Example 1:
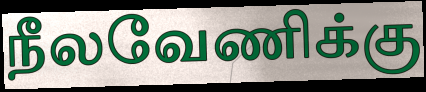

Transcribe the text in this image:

நீலவேணிக்கு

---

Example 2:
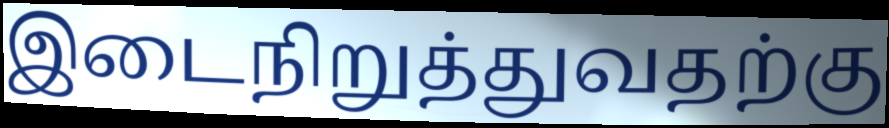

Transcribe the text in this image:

இடைநிறுத்துவதற்கு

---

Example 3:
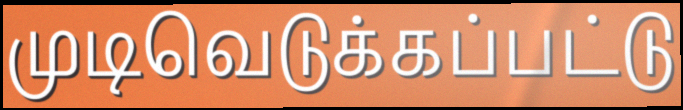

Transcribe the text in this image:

முடிவெடுக்கப்பட்டு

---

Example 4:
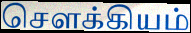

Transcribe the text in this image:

சௌக்கியம்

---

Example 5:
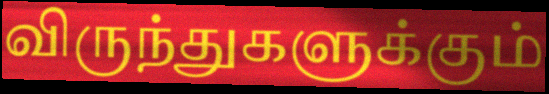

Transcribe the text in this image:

விருந்துகளுக்கும்